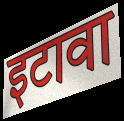
इटावा